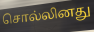
சொல்லினது